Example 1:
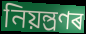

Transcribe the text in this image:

নিয়ন্ত্ৰণৰ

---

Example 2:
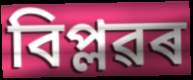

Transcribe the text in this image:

বিপ্লৱৰ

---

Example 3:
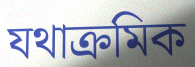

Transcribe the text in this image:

যথাক্ৰমিক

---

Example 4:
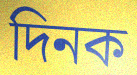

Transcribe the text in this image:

দিনক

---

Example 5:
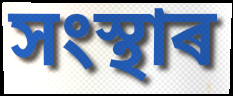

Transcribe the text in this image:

সংস্থাৰ